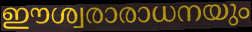
ഈശ്വരാരാധനയും